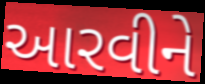
આરવીને